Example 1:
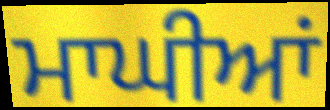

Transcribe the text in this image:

ਮਾਘੀਆਂ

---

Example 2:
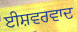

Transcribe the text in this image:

ਈਸ਼ਵਰਵਾਦ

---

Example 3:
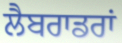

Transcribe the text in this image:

ਲੈਬਰਾਡਰਾਂ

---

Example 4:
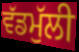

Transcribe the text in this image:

ਵੱਡਮੁੱਲੀ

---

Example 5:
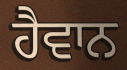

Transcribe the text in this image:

ਹੈਵਾਨ